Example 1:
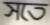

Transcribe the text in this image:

সতে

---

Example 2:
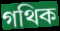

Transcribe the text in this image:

গথিক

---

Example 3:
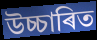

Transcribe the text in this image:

উচ্চাৰিত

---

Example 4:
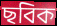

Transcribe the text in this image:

ছবিক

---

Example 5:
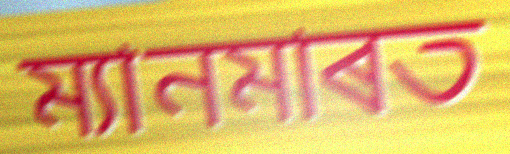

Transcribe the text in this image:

ম্যানমাৰত